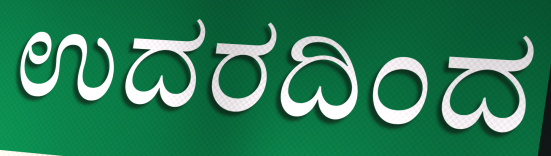
ಉದರದಿಂದ